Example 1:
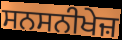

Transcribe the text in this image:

ਸਨਸਨੀਖੇਜ਼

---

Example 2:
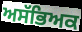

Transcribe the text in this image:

ਅਸੱਭਿਅਕ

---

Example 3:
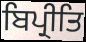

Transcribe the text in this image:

ਬਿਪ੍ਰੀਤਿ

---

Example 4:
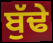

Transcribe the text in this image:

ਬੁੱਢੇ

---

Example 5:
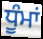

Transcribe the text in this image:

ਧੂੰਮਾਂ